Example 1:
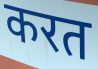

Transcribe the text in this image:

करत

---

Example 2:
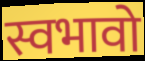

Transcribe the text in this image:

स्वभावो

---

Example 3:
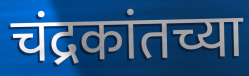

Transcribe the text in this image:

चंद्रकांतच्या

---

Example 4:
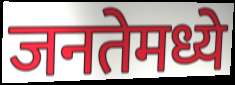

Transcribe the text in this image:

जनतेमध्ये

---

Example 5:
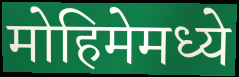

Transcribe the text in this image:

मोहिमेमध्ये